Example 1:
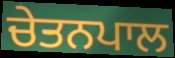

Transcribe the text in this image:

ਚੇਤਨਪਾਲ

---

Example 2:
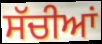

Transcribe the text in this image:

ਸੱਚੀਆਂ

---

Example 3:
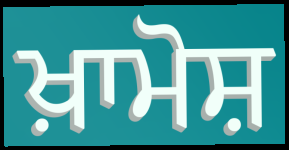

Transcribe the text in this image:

ਖ਼ਾਮੋਸ਼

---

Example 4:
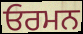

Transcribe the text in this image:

ਓਰਮਨ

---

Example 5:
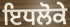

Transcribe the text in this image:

ਇਧਲੋਕੇ